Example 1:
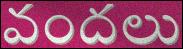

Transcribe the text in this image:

వందలు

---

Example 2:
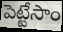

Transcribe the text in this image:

పెట్టేసాం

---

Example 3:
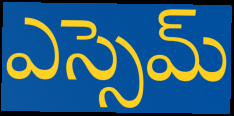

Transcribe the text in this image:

ఎస్సెమ్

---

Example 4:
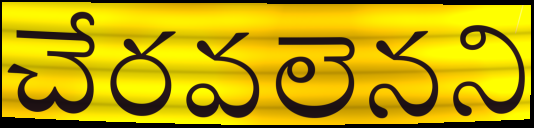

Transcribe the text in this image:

చేరవలెనని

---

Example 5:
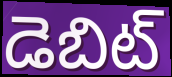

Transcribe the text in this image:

డెబిట్